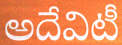
అదేవిటీ